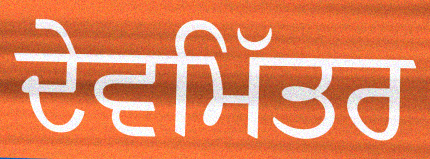
ਦੇਵਮਿੱਤਰ